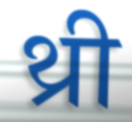
थ्री